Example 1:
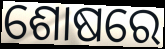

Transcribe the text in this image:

ଶୋଷରେ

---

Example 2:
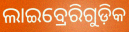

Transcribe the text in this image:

ଲାଇବ୍ରେରିଗୁଡ଼ିକ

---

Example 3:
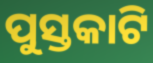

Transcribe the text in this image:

ପୁସ୍ତକାଟି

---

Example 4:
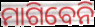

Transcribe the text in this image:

ମାଗିବେନି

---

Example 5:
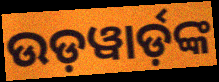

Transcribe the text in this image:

ଉଡ଼ୱାର୍ଡ଼ଙ୍କ